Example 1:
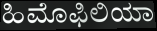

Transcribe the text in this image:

ಹಿಮೊಫಿಲಿಯಾ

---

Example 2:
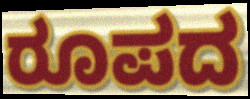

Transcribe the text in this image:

ರೂಪದ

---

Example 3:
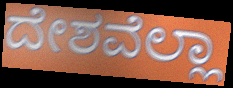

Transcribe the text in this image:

ದೇಶವೆಲ್ಲಾ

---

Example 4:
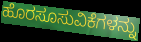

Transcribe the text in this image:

ಹೊರಸೂಸುವಿಕೆಗಳನ್ನು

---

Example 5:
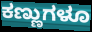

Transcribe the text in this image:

ಕಣ್ಣುಗಳೂ